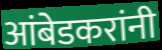
आंबेडकरांनी